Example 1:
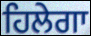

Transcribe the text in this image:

ਹਿਲੇਗਾ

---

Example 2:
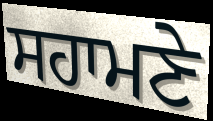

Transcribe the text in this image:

ਸਹਾਮਣੇ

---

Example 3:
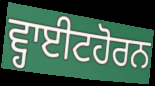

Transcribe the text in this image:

ਵ੍ਹਾਈਟਹੋਰਨ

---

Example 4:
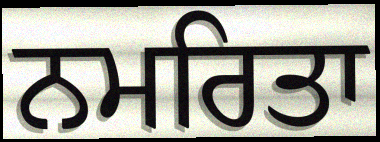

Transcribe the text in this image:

ਨਮਰਿਤਾ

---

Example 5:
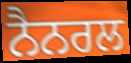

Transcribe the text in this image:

ਨੈਨਰਲ